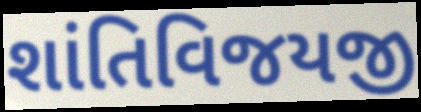
શાંતિવિજયજી